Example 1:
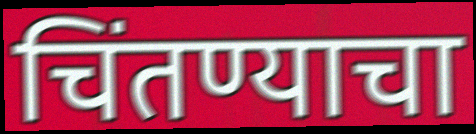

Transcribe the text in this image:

चिंतण्याचा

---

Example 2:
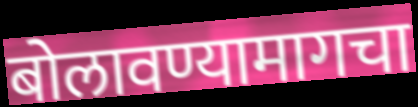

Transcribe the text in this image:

बोलावण्यामागचा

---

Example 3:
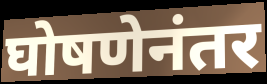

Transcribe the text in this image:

घोषणेनंतर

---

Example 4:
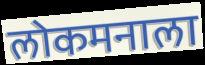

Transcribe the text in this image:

लोकमनाला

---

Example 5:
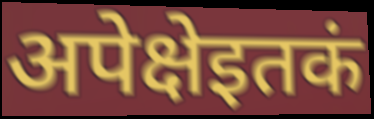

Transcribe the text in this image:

अपेक्षेइतकं